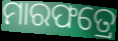
ମାରଫତ୍ରେ